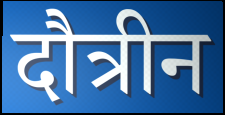
दौत्रीन